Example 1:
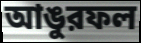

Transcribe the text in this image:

আঙুরফল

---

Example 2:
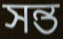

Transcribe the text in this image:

সন্ত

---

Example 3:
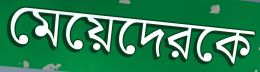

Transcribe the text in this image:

মেয়েদেরকে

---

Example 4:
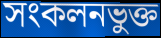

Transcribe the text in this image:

সংকলনভুক্ত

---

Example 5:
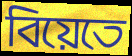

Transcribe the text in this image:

বিয়েতে